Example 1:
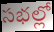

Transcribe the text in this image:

సభల్లో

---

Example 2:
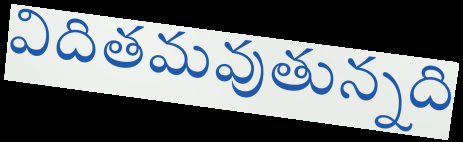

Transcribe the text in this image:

విదితమవుతున్నది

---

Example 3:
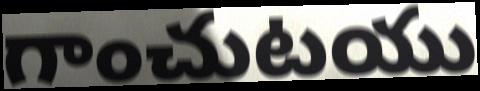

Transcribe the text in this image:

గాంచుటయు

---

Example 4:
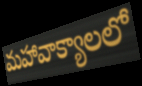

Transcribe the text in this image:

మహావాక్యాలలో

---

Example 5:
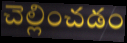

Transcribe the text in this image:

చెల్లించడం